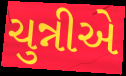
ચુન્નીએ